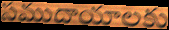
సముదాయాలకు